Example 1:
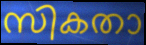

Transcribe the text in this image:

സികതാ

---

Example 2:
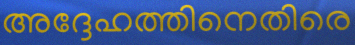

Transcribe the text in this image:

അദ്ദേഹത്തിനെതിരെ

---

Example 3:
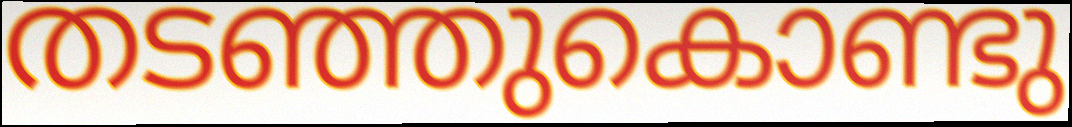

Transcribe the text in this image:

തടഞ്ഞുകൊണ്ടു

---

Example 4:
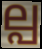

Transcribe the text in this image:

ല്പ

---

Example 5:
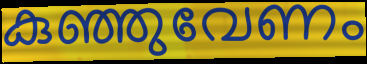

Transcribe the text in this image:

കുഞ്ഞുവേണം